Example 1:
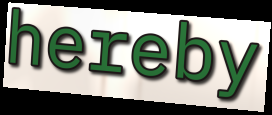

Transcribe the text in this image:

hereby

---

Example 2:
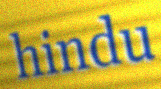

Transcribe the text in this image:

hindu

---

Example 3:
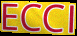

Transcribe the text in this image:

ECCI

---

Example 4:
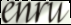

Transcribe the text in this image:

enru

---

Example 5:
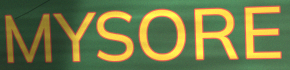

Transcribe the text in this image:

MYSORE